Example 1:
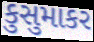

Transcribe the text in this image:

કુસુમાકર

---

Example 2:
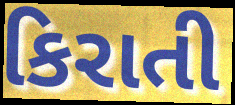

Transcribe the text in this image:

કિરાતી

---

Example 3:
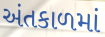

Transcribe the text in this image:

અંતકાળમાં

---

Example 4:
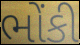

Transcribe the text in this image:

ભોંકી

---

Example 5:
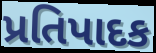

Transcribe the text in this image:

પ્રતિપાદક